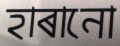
হাৰানো